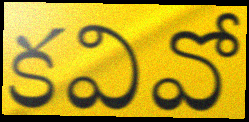
కవివో